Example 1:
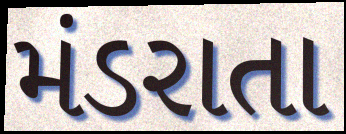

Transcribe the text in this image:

મંડરાતા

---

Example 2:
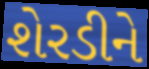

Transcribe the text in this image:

શેરડીને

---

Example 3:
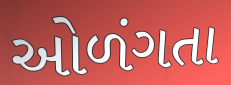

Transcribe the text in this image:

ઓળંગતા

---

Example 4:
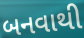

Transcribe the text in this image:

બનવાથી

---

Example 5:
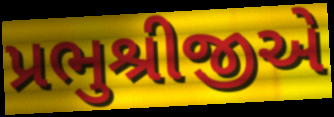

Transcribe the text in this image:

પ્રભુશ્રીજીએ